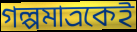
গল্পমাত্রকেই